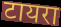
टायरा